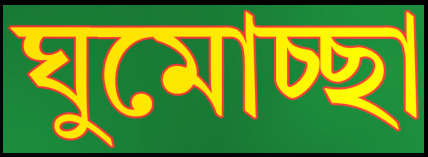
ঘুমোচ্ছা